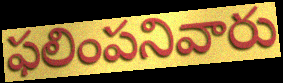
ఫలింపనివారు